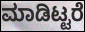
ಮಾಡಿಟ್ಟರೆ